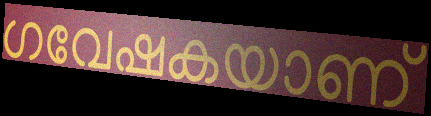
ഗവേഷകയാണ്